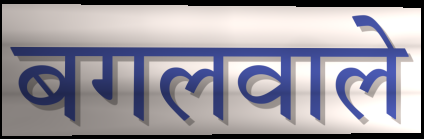
बगलवाले